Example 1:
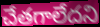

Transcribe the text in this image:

చేతగాలేదని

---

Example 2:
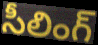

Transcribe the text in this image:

సీలింగ్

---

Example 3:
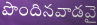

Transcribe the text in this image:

పొందినవాడవై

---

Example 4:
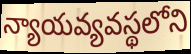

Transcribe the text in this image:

న్యాయవ్యవస్థలోని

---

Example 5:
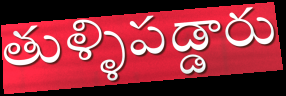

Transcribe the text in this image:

తుళ్ళిపడ్డారు